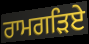
ਰਾਮਗੜਿਏ